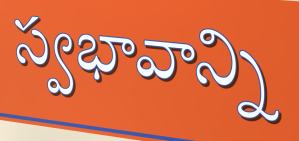
స్వభావాన్ని